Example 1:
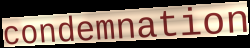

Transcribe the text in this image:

condemnation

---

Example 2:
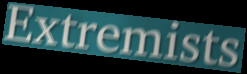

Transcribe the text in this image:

Extremists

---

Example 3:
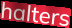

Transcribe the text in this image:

halters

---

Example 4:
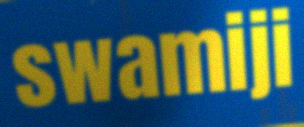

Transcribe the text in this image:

swamiji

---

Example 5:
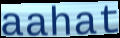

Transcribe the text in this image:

aahat